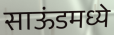
साऊंडमध्ये